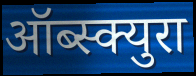
ऑब्स्क्युरा